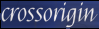
crossorigin